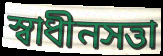
স্বাধীনসত্তা